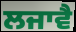
ਲਜਾਵੈ